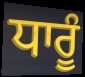
ਧਾਰੂੰ